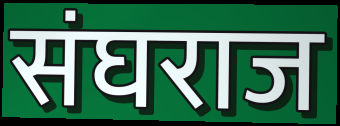
संघराज